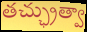
తచ్ఛ్రుత్వా